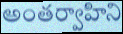
అంతర్వాహిని